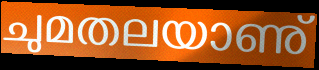
ചുമതലയാണു്